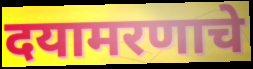
दयामरणाचे